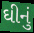
ઘીનું